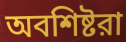
অবশিষ্টরা